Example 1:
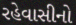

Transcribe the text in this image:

રહેવાસીનો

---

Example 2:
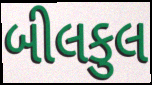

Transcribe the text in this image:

બીલકુલ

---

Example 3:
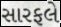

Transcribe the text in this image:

સારફલે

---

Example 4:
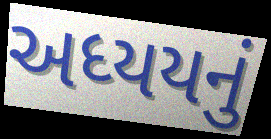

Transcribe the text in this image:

અધ્યયનું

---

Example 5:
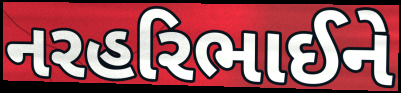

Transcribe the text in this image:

નરહરિભાઈને